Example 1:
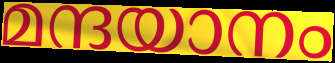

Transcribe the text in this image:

മന്ദയാനം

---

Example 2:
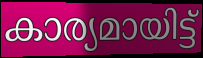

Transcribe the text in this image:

കാര്യമായിട്ട്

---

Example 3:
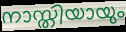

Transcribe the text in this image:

നാസ്തിയായും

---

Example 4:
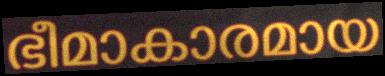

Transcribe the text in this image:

ഭീമാകാരമായ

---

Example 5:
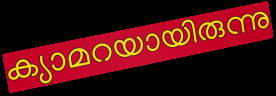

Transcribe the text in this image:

ക്യാമറയായിരുന്നു